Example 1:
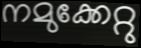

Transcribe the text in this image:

നമുക്കേറ്റു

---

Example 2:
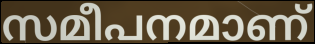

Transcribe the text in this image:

സമീപനമാണ്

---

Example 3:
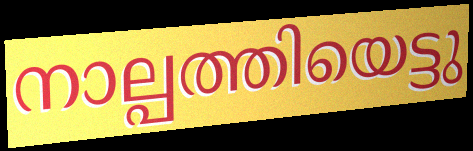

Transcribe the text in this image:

നാല്പത്തിയെട്ടു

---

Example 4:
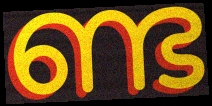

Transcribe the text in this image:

ണ്ട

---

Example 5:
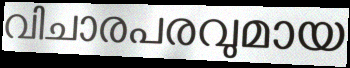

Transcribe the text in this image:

വിചാരപരവുമായ